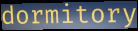
dormitory